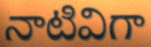
నాటివిగా